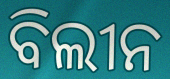
ବିଲୀନ